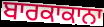
ਬਾਰਕਾਕਾਨਾ